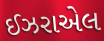
ઈઝરાએલ